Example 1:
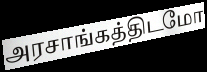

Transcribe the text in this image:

அரசாங்கத்திடமோ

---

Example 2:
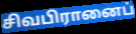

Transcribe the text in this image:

சிவபிரானைப்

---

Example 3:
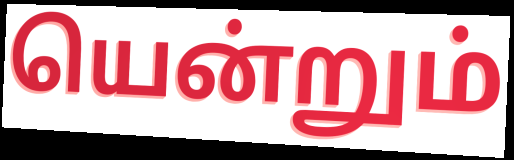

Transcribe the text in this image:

யென்றும்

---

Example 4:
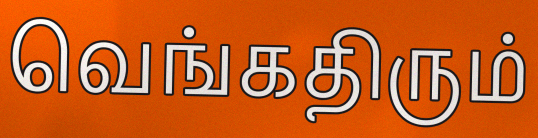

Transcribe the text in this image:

வெங்கதிரும்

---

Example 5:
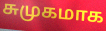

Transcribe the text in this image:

சுமுகமாக